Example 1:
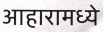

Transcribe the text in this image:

आहारामध्ये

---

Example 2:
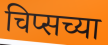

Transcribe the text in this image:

चिप्सच्या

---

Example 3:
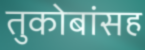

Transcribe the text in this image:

तुकोबांसह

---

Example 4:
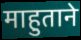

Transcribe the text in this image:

माहुताने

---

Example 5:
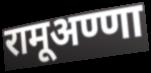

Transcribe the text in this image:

रामूअण्णा